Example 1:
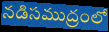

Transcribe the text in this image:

నడిసముద్రంలో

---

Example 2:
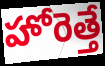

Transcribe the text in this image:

హోరెత్తే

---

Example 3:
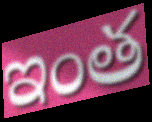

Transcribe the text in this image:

ఇంత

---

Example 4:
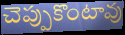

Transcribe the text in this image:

చెప్పుకొంటావు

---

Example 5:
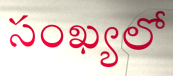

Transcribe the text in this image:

సంఖ్యలో